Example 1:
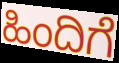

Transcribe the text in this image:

ಹಿಂದಿಗೆ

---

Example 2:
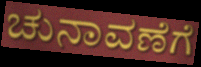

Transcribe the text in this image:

ಚುನಾವಣೆಗೆ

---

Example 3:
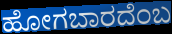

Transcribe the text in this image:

ಹೋಗಬಾರದೆಂಬ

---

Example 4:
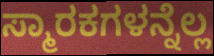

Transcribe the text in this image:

ಸ್ಮಾರಕಗಳನ್ನೆಲ್ಲ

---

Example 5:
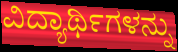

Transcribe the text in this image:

ವಿದ್ಯಾರ್ಥಿಗಳನ್ನು